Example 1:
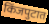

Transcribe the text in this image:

किंजपुटात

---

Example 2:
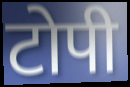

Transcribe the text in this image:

टोपी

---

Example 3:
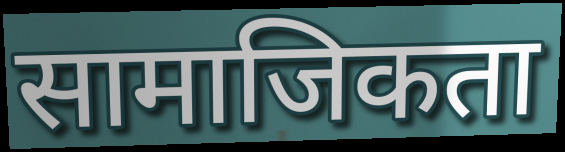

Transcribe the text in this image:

सामाजिकता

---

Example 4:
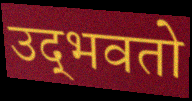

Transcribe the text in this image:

उद्‌भवतो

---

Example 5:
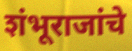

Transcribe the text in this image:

शंभूराजांचे